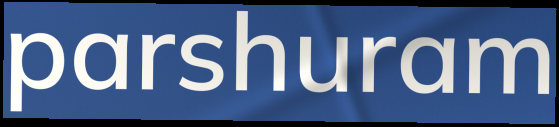
parshuram